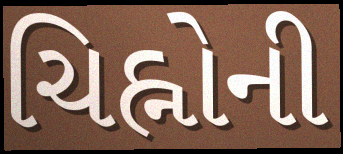
ચિહ્નોની